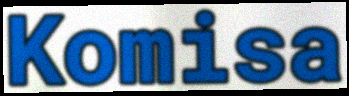
Komisa